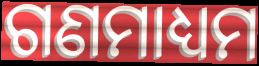
ଗଣମାଧ୍ୟମ